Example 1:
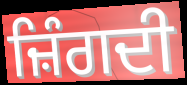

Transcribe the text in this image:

ਜ਼ਿੰਗਦੀ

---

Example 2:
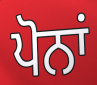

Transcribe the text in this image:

ਪੋਨਾਂ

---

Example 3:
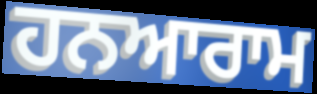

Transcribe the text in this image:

ਹਨਆਰਾਮ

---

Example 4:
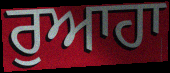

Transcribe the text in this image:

ਰੁਆਹਾ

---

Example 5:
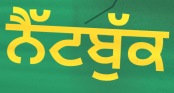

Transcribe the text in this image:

ਨੈੱਟਬੁੱਕ